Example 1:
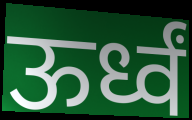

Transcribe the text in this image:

ऊर्ध्वं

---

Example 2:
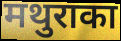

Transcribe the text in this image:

मथुराका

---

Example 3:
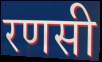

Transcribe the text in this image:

रणसी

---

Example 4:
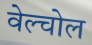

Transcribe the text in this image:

वेल्चोल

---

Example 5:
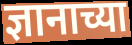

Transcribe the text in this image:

ज्ञानाच्या